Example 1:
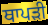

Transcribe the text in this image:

ਥਾਪੜੀ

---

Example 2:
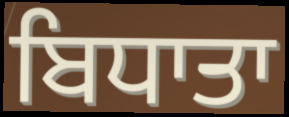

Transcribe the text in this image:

ਬਿਧਾਤਾ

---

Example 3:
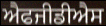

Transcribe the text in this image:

ਐਫਜੀਡੀਐਸ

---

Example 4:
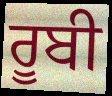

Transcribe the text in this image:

ਰੂਬੀ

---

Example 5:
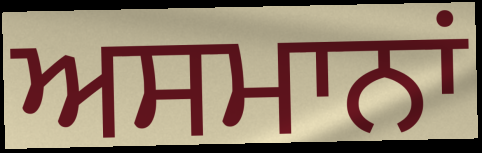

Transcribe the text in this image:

ਅਸਮਾਨਾਂ